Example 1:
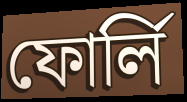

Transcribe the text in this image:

ফোর্লি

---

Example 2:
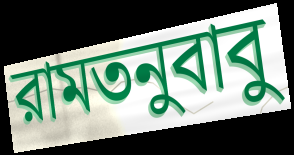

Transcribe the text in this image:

রামতনুবাবু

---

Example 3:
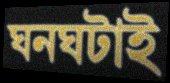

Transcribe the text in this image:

ঘনঘটাই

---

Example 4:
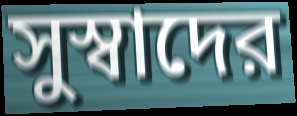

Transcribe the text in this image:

সুস্বাদের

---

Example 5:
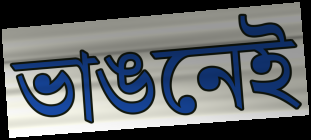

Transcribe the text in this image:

ভাঙনেই